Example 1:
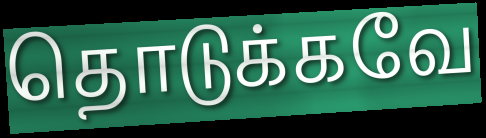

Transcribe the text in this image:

தொடுக்கவே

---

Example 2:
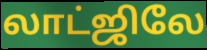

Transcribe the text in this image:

லாட்ஜிலே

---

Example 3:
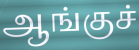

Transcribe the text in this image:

ஆங்குச்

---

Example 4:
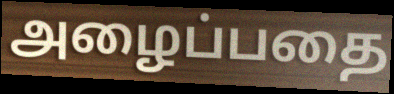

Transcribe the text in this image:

அழைப்பதை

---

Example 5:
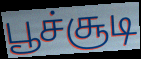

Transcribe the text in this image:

பூச்சூடி